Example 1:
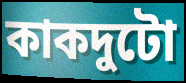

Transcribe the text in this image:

কাকদুটো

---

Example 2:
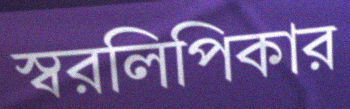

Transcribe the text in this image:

স্বরলিপিকার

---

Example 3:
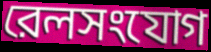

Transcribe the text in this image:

রেলসংযোগ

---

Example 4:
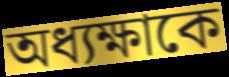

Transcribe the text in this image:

অধ্যক্ষাকে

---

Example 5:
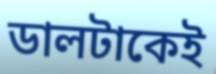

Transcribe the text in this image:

ডালটাকেই